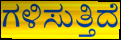
ಗಳಿಸುತ್ತಿದೆ